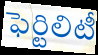
ఫెర్టిలిటీ